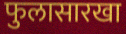
फुलासारखा